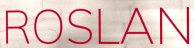
ROSLAN